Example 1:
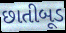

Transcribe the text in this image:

છાતીબૂડ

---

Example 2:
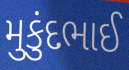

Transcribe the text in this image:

મુકુંદભાઈ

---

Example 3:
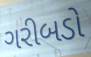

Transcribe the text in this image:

ગરીબડો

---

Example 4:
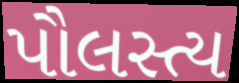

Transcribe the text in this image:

પૌલસ્ત્ય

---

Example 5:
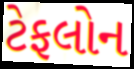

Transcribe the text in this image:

ટેફલોન